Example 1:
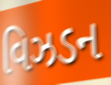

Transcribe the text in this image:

વિઝડન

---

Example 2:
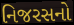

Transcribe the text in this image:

નિજરસનો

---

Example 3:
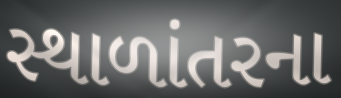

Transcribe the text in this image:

સ્થાળાંતરના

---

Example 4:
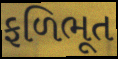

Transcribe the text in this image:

ફળિભૂત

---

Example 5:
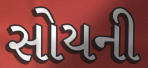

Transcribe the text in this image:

સોયની